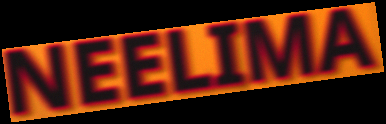
NEELIMA